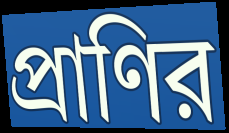
প্রাণির